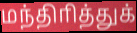
மந்திரித்துக்